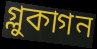
গ্লুকাগন